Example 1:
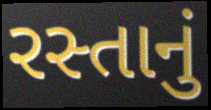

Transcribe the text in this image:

રસ્તાનું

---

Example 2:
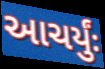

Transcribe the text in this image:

આચર્યુંઃ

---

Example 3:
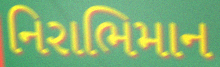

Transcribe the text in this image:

નિરાભિમાન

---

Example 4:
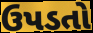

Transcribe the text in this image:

ઉપડતો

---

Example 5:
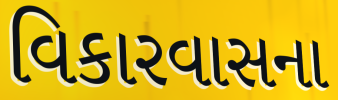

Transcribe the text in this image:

વિકારવાસના